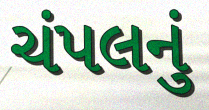
ચંપલનું